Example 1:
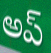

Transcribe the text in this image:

అప్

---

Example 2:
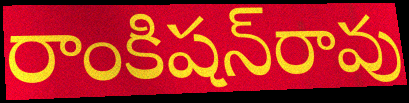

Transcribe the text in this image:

రాంకిషన్‌రావు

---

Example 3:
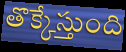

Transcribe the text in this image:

తొక్కేస్తుంది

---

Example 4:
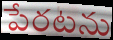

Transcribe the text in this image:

పేరటను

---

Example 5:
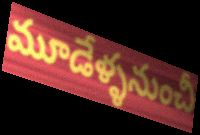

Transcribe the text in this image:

మూడేళ్ళనుంచీ